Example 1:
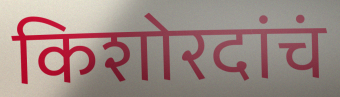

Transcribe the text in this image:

किशोरदांचं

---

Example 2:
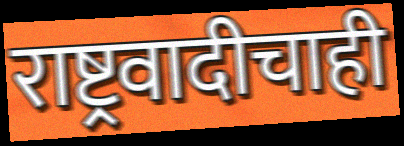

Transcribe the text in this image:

राष्ट्रवादीचाही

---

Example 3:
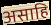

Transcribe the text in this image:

असाहि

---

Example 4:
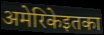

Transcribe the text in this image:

अमेरिकेइतका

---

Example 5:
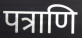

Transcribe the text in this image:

पत्राणि